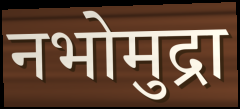
नभोमुद्रा